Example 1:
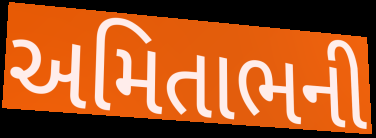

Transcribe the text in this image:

અમિતાભની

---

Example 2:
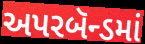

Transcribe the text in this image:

અપરબૅન્ડમાં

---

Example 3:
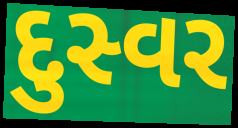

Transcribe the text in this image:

દુસ્વર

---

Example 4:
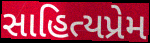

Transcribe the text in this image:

સાહિત્યપ્રેમ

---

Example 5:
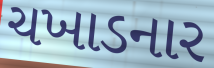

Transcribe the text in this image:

ચખાડનાર